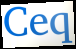
Ceq